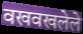
वखवखलेले